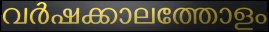
വർഷക്കാലത്തോളം